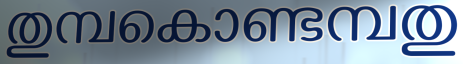
തുമ്പകൊണ്ടമ്പതു